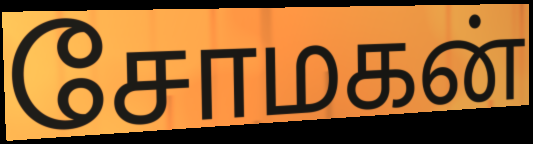
சோமகன்